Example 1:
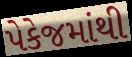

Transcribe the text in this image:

પેકેજમાંથી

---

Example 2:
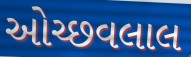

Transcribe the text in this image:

ઓચ્છવલાલ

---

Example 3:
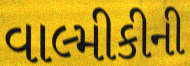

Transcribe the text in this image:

વાલ્મીકીની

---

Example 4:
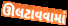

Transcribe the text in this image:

ઊલટાવવામાં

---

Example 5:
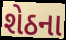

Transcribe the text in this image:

શેઠના